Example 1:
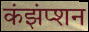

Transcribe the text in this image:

कंझंप्शन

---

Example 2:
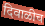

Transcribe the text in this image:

दिवाळीच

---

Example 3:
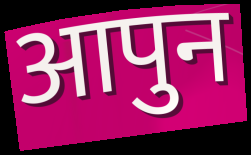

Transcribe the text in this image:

आपुन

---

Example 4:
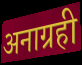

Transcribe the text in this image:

अनाग्रही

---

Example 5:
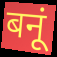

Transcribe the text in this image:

बनूं